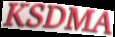
KSDMA